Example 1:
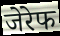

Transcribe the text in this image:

जेरेफ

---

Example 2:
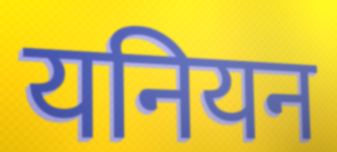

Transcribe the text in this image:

यनियन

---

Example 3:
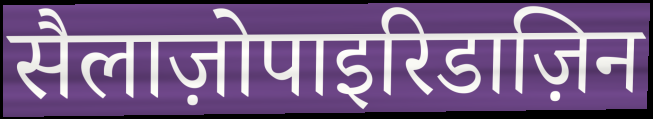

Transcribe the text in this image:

सैलाज़ोपाइरिडाज़िन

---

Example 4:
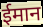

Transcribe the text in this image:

ईमान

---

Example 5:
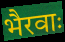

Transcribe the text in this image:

भैरवाः